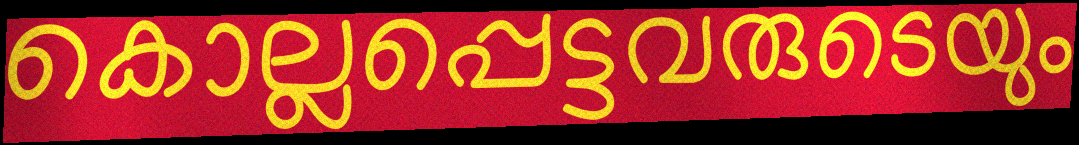
കൊല്ലപ്പെട്ടവരുടെയും